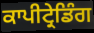
ਕਾਪੀਟ੍ਰੇਡਿੰਗ